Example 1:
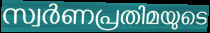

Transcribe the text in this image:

സ്വർണപ്രതിമയുടെ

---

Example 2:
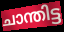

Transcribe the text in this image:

ചാന്തിട്ട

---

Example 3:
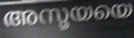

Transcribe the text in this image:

അസൂയയെ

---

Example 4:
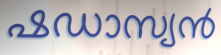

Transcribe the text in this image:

ഷഡാസ്യൻ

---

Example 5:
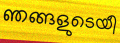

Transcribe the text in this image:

ഞങ്ങളുടെയീ